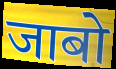
जाबो